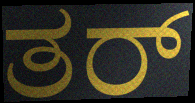
ತರ್